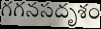
గగనసదృశం